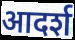
आदर्श